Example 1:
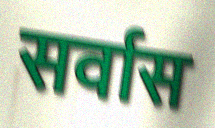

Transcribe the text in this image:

सर्वास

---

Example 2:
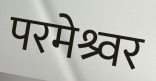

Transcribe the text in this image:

परमेश्र्वर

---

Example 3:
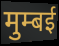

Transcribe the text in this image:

मुम्बई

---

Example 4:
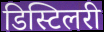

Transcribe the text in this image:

डिस्टिलरी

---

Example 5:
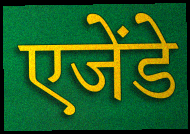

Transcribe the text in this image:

एजेंडे